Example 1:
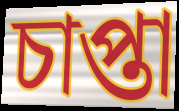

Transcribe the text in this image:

চাপ্তা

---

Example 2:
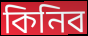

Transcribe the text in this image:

কিনিব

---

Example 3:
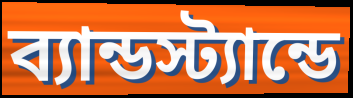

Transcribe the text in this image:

ব্যান্ডস্ট্যান্ডে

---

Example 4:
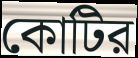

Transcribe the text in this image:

কোটির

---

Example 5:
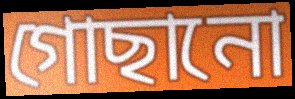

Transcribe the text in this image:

গোছানো